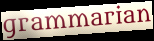
grammarian